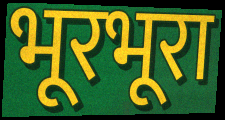
भूरभूरा